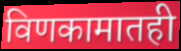
विणकामातही